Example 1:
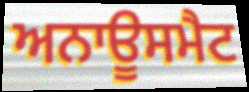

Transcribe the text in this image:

ਅਨਾਊਸਮੈਟ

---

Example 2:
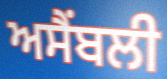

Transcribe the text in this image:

ਅਸੈਂਬਲੀ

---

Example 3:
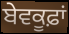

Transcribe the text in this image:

ਬੇਵਕੂਫ਼ਾਂ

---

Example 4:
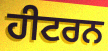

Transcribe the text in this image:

ਹੀਟਰਨ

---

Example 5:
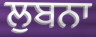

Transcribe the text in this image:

ਲੁਬਨਾ